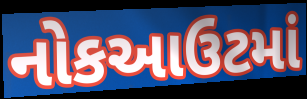
નોકઆઉટમાં